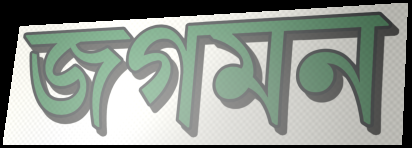
জগমন